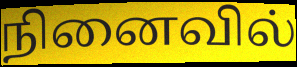
நினைவில்